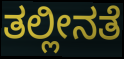
ತಲ್ಲೀನತೆ